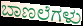
ಬಾಣಲೆಗಳು